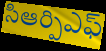
సిఆర్పిఎఫ్